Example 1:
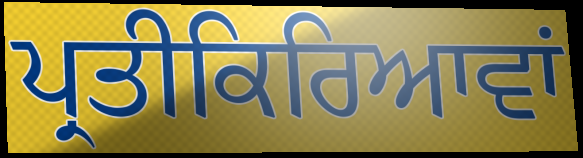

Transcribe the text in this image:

ਪ੍ਰਤੀਕਿਰਿਆਵਾਂ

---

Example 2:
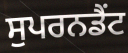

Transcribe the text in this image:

ਸੁਪਰਨਡੈਂਟ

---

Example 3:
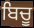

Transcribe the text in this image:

ਬਿਚੂ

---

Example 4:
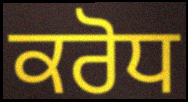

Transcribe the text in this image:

ਕਰੋਧ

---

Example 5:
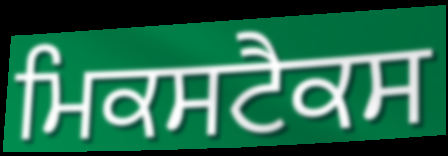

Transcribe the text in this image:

ਮਿਕਸਟੈਕਸ